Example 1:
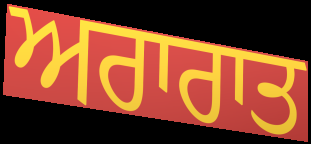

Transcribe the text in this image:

ਅਰਾਰਾਤ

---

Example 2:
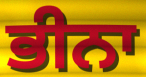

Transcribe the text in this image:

ਭੀਨਾ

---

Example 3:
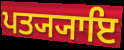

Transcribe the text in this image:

ਪਤ੍ਯ੍ਯਾਇ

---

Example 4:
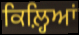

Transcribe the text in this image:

ਕਿਲ਼੍ਹਿਆਂ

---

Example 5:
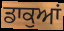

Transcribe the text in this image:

ਡਾਕੁਆਂ